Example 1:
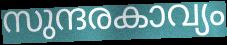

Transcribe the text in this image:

സുന്ദരകാവ്യം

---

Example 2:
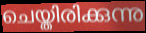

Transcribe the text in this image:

ചെയ്തിരിക്കുന്നു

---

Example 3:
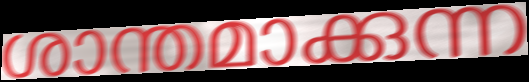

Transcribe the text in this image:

ശാന്തമാക്കുന്ന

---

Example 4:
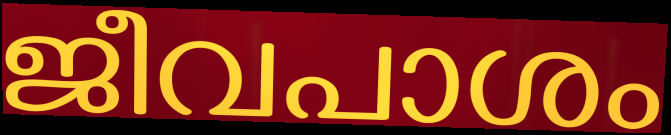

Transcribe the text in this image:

ജീവപാശം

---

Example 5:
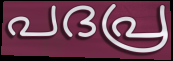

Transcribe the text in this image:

പദപ്ര